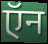
ऍन